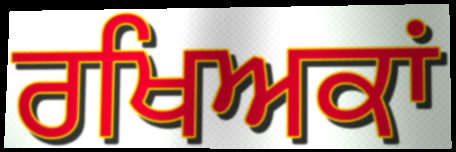
ਰਖਿਅਕਾਂ